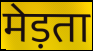
मेड़ता